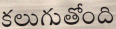
కలుగుతోంది